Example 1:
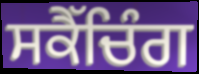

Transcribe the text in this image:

ਸਕੈੱਚਿੰਗ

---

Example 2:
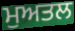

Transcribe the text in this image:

ਮੁਅਤਲ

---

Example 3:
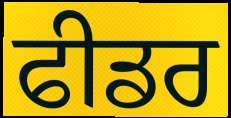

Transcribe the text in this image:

ਫੀਡਰ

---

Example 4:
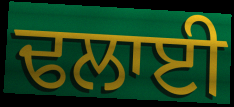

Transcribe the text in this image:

ਢਲਾਈ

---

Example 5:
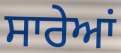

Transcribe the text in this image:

ਸਾਰੇਆਂ